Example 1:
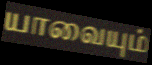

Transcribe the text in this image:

யாவையும்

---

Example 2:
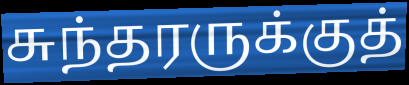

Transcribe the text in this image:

சுந்தரருக்குத்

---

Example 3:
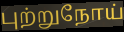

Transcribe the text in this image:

புற்றுநோய்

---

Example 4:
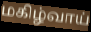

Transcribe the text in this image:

மகிழ்வாய்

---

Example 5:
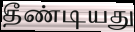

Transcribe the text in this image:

தீண்டியது